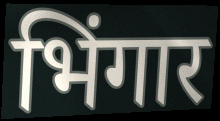
भिंगार